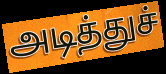
அடித்துச்